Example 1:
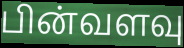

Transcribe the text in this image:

பின்வளவு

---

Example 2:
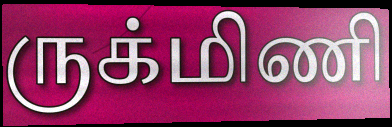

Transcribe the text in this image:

ருக்மிணி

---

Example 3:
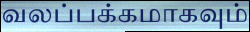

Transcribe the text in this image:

வலப்பக்கமாகவும்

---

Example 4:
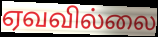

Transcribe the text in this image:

ஏவவில்லை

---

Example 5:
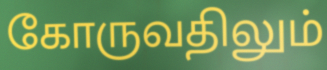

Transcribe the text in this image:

கோருவதிலும்